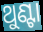
ଥୁଣ୍ଟା